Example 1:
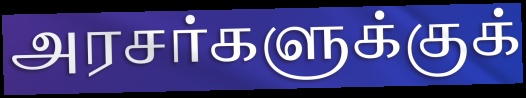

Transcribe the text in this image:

அரசர்களுக்குக்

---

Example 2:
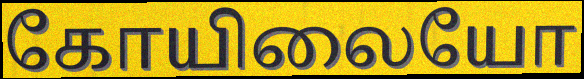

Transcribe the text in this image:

கோயிலையோ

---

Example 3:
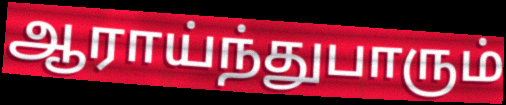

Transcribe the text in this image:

ஆராய்ந்துபாரும்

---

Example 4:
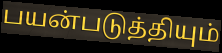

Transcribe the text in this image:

பயன்படுத்தியும்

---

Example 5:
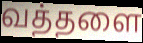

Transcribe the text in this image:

வத்தளை